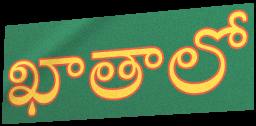
ఖాతాలో